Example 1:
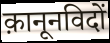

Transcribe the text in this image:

क़ानूनविदों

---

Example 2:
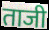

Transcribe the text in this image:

ताजी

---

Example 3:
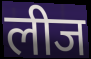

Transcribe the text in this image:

लीज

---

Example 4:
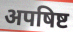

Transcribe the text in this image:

अपषिष्ट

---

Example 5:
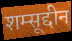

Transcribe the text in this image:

शम्सूद्दीन